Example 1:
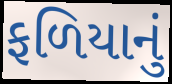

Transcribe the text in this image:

ફળિયાનું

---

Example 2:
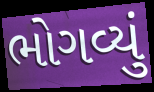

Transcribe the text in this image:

ભોગવ્યું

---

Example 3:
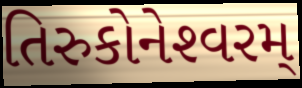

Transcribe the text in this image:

તિરુકોનેશ્‍વરમ્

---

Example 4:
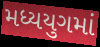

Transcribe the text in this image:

મધ્યયુગમાં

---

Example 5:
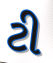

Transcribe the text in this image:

ટી